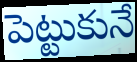
పెట్టుకునే